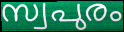
സ്വപുരം